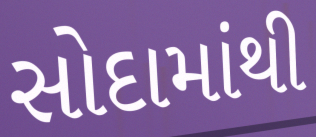
સોદામાંથી